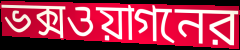
ভক্সওয়াগনের